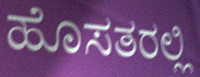
ಹೊಸತರಲ್ಲಿ